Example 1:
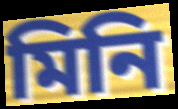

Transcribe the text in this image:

মিনি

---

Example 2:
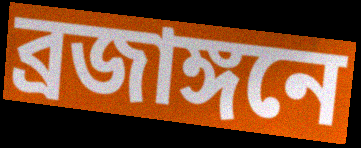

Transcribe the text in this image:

ব্রজাঙ্গনে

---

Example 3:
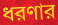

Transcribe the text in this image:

ধরণার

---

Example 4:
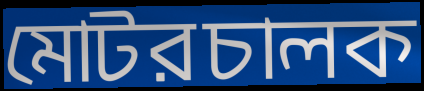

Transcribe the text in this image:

মোটরচালক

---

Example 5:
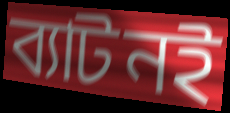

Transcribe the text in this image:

ব্যাটনই